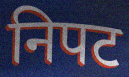
निपट